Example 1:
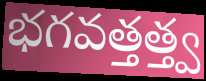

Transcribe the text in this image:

భగవత్తత్త్వ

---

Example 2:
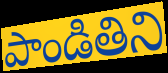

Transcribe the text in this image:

పాండితిని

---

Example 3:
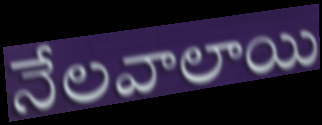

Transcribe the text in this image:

నేలవాలాయి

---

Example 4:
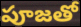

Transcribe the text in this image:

పూజతో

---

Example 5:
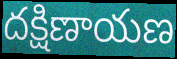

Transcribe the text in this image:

దక్షిణాయణ